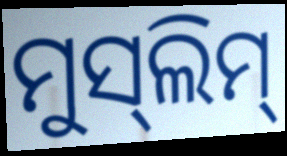
ମୁସ୍‌ଲିମ୍